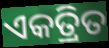
ଏକତ୍ରିତ